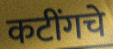
कटींगचे